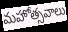
మహోత్సవాలు